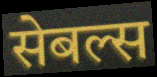
सेबल्स